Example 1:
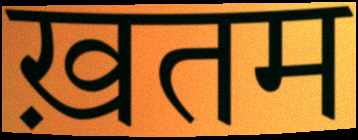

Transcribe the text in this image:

ख़तम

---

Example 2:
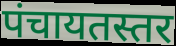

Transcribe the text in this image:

पंचायतस्तर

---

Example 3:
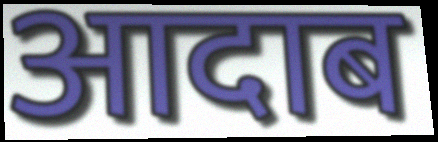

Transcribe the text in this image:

आदाब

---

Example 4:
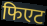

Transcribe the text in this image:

फिएट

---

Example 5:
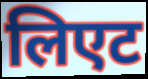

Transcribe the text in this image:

लिएट